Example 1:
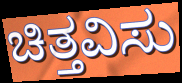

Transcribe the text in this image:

ಚಿತ್ತವಿಸು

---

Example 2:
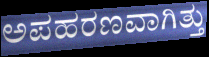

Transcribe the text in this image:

ಅಪಹರಣವಾಗಿತ್ತು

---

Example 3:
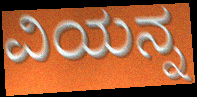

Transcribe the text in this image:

ವಿಯನ್ನ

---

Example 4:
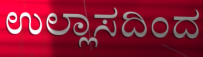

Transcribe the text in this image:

ಉಲ್ಲಾಸದಿಂದ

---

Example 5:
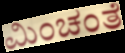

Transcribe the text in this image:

ಮಿಂಚಂತೆ